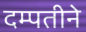
दम्पतीने